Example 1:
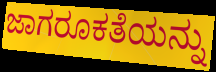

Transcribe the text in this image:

ಜಾಗರೂಕತೆಯನ್ನು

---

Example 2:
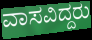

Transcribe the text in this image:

ವಾಸವಿದ್ದರು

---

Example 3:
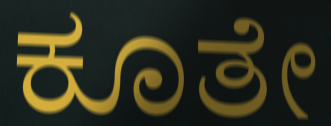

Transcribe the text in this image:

ಕೂತೇ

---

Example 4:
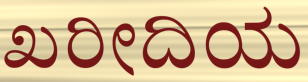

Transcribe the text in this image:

ಖರೀದಿಯ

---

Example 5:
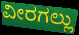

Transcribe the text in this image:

ವೀರಗಲ್ಲು